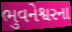
ભુવનેશ્વરના